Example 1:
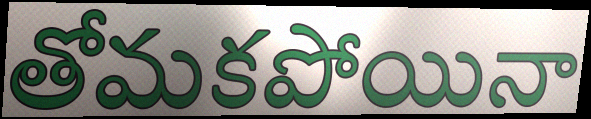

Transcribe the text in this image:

తోమకపోయినా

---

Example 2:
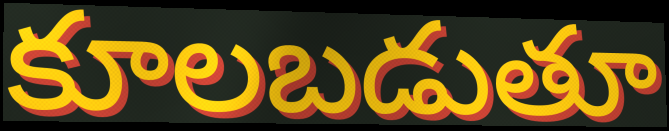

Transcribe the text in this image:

కూలబడుతూ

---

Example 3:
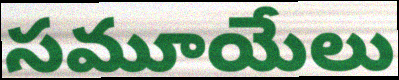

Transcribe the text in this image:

సమూయేలు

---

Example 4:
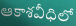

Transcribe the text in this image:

ఆకాశవీధిలో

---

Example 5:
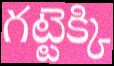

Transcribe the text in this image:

గట్టెక్కి